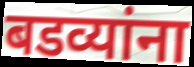
बडव्यांना